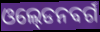
ଓଲ୍‍ଡେନବର୍ଗ